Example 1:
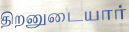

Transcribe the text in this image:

திறனுடையார்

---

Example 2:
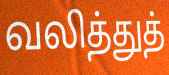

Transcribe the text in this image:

வலித்துத்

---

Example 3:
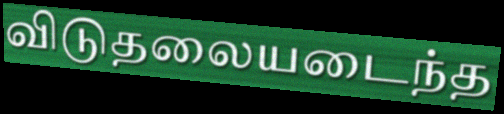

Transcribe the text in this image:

விடுதலையடைந்த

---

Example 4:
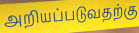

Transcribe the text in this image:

அறியப்படுவதற்கு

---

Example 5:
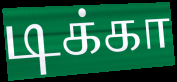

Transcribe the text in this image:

டிக்கா